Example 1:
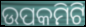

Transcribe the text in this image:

ଉପକମିଟି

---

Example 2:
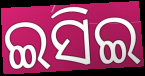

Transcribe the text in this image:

ଇସିଇ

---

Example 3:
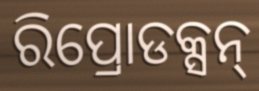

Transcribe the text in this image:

ରିପ୍ରୋଡକ୍ସନ୍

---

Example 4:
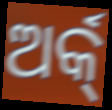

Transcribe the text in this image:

ଅର୍କ୍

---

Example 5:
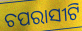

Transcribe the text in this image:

ଚପରାସୀଟି